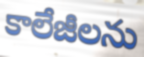
కాలేజీలను